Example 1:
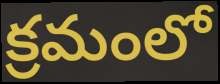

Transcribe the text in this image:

క్రమంలో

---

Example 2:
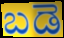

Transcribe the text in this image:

బడె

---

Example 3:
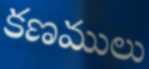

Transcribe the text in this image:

కణములు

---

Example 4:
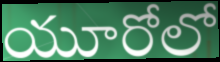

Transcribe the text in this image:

యూరోలో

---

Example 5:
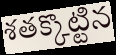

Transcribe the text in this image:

శతక్కొట్టిన